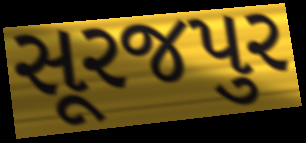
સૂરજપુર